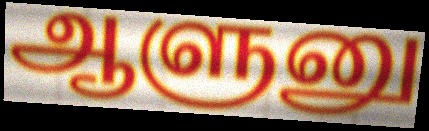
ஆளுனு